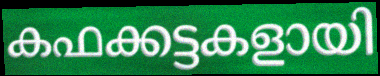
കഫക്കട്ടകളായി